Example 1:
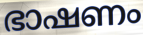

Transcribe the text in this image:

ഭാഷണം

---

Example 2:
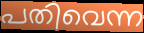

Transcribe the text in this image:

പതിവെന്ന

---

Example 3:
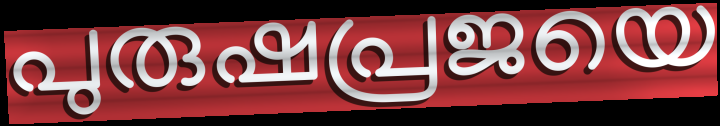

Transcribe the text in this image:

പുരുഷപ്രജയെ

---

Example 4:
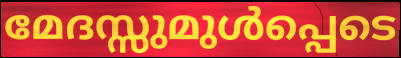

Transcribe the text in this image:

മേദസ്സുമുൾപ്പെടെ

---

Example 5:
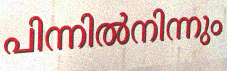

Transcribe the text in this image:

പിന്നിൽനിന്നും